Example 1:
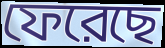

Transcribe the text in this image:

ফেরেছে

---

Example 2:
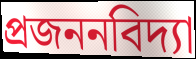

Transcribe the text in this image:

প্রজননবিদ্যা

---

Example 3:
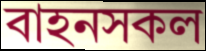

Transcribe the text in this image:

বাহনসকল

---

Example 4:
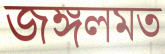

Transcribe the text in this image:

জঙ্গলমত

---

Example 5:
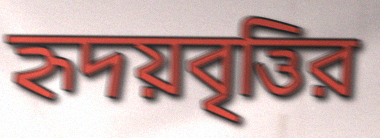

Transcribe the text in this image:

হৃদয়বৃত্তির